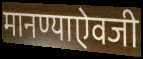
मानण्याऐवजी